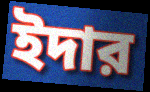
ইদার